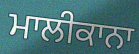
ਮਾਲੀਕਾਨਾ